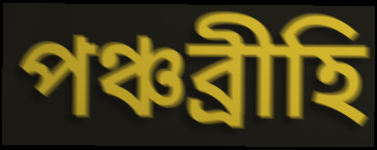
পঞ্চব্রীহি